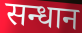
सन्धान